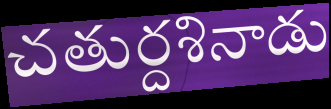
చతుర్దశినాడు